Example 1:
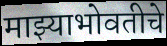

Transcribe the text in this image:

माझ्याभोवतीचे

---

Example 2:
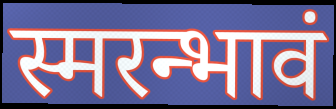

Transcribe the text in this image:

स्मरन्भावं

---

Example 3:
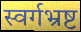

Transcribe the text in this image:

स्वर्गभ्रष्ट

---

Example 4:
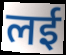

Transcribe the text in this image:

लई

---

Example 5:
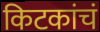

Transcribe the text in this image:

किटकांचं